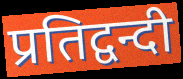
प्रतिद्वन्दी